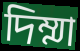
দিম্মা